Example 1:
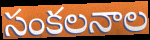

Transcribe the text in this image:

సంకలనాల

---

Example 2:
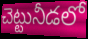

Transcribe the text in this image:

చెట్టునీడలో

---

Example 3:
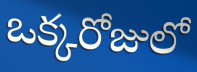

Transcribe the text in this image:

ఒక్కరోజులో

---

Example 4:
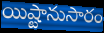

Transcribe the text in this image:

యిష్టానుసారం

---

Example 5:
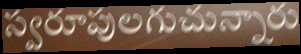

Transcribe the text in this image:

స్వరూపులగుచున్నారు